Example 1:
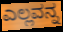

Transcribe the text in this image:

ಎಲ್ಲವನ್ನ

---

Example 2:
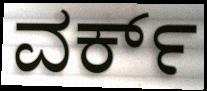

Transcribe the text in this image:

ವರ್ಕ್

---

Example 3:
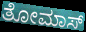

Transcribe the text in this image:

ತೋಮಾಸ್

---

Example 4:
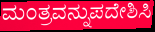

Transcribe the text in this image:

ಮಂತ್ರವನ್ನುಪದೇಶಿಸಿ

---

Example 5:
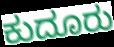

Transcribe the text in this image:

ಕುದೂರು